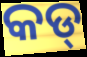
କଡ୍